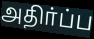
அதிர்ப்ப